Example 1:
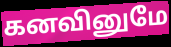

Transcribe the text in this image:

கனவினுமே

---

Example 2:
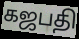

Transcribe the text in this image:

கஜபதி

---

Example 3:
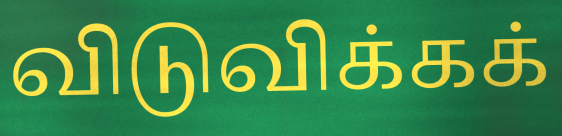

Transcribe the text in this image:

விடுவிக்கக்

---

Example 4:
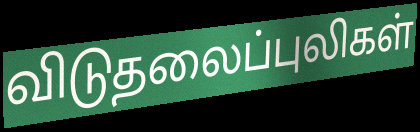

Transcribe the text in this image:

விடுதலைப்புலிகள்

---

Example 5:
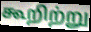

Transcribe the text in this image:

கூறிற்று